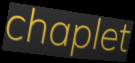
chaplet